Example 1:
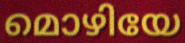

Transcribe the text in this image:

മൊഴിയേ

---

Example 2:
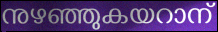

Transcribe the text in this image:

നുഴഞ്ഞുകയറാന്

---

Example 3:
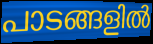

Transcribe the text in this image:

പാടങ്ങളിൽ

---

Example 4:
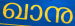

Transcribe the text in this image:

ഖാനു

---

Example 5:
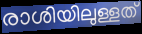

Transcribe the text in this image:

രാശിയിലുള്ളത്